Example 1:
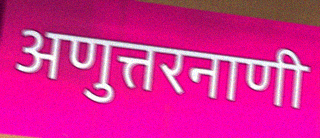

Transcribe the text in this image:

अणुत्तरनाणी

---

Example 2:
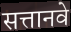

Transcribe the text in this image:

सत्तानवे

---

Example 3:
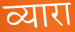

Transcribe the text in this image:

व्यारा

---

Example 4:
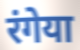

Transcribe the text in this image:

रंगेया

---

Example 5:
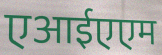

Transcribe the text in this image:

एआईएएम